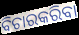
ବିଚାରକରିବା